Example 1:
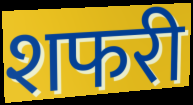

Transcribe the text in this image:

शफरी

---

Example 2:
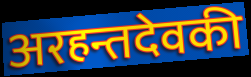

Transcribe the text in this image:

अरहन्तदेवकी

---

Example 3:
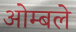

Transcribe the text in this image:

ओम्बले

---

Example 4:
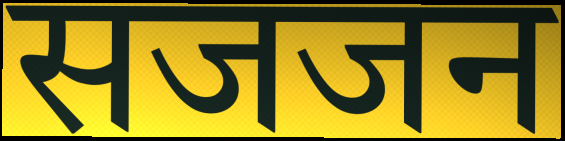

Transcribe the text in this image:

सजजन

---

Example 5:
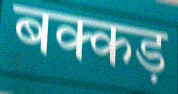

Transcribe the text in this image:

बक्कड़